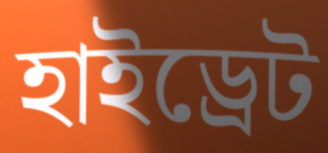
হাইড্রেট